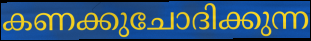
കണക്കുചോദിക്കുന്ന